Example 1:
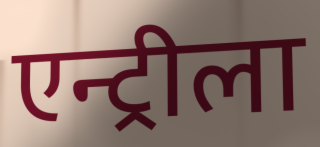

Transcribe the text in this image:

एन्ट्रीला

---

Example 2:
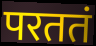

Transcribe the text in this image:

परततं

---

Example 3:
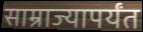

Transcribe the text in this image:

साम्राज्यापर्यंत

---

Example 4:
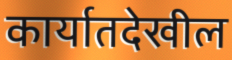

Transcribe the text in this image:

कार्यातदेखील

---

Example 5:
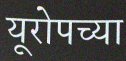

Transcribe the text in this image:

यूरोपच्या